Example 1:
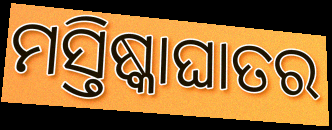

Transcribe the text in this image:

ମସ୍ତିଷ୍କାଘାତର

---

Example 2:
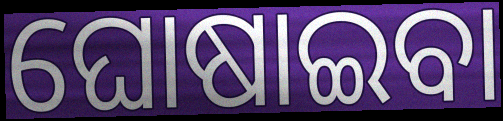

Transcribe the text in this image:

ଘୋଷାଇବା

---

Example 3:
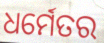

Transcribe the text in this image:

ଧର୍ମେତର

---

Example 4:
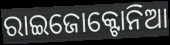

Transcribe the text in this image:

ରାଇଜୋକ୍ଟୋନିଆ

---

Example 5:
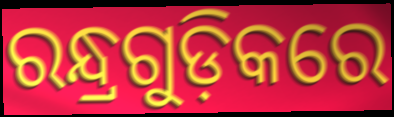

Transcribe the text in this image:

ରନ୍ଧ୍ରଗୁଡ଼ିକରେ